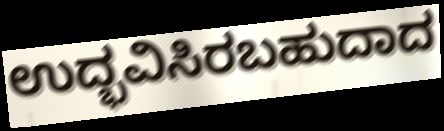
ಉದ್ಭವಿಸಿರಬಹುದಾದ